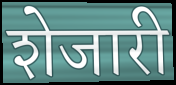
शेजारी